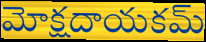
మోక్షదాయకమ్